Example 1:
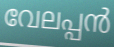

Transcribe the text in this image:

വേലപ്പൻ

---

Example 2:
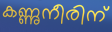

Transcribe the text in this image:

കണ്ണുനീരിന്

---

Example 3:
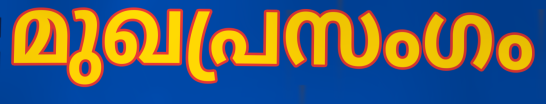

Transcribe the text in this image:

മുഖപ്രസംഗം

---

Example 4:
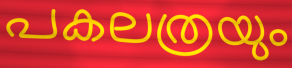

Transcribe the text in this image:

പകലത്രയും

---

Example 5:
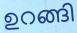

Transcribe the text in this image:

ഉറങ്ങി